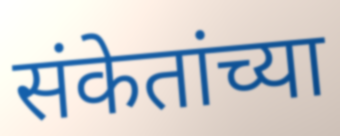
संकेतांच्या